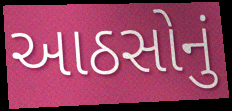
આઠસોનું